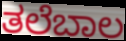
ತಲೆಬಾಲ